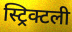
स्ट्रिक्टली